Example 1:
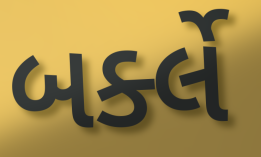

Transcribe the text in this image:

બર્ક્લે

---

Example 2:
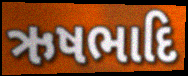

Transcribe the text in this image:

ઋષભાદિ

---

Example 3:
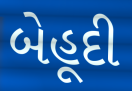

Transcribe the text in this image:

બેહૂદી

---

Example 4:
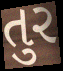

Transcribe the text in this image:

તુર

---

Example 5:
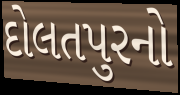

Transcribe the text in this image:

દોલતપુરનો